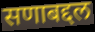
सणाबद्दल